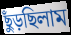
ছুঁড়ছিলাম